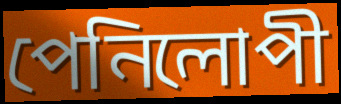
পেনিলোপী